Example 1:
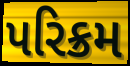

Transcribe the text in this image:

પરિક્રમ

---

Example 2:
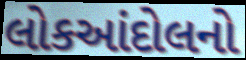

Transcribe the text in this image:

લોકઆંદોલનો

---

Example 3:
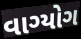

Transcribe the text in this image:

વાગ્યોગ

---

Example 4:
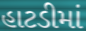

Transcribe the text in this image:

હાટડીમાં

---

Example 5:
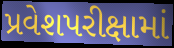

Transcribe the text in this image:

પ્રવેશપરીક્ષામાં